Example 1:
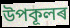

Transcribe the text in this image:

উপকূলৰ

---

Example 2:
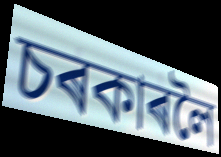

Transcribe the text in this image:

চৰকাৰলৈ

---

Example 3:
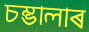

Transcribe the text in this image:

চম্ভালাৰ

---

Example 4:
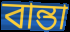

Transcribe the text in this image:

বান্তা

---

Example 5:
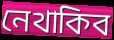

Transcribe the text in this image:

নেথাকিব